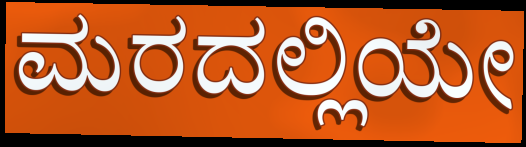
ಮರದಲ್ಲಿಯೇ